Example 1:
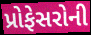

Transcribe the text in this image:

પ્રોફેસરોની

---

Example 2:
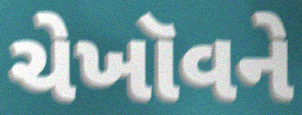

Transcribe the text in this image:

ચેખૉવને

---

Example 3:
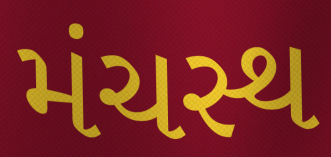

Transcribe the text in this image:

મંચસ્થ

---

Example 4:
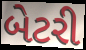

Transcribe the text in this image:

બેટરી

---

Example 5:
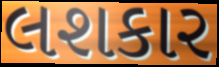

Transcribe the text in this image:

લશકાર